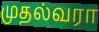
முதல்வரா